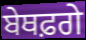
ਬੇਥਫ਼ਗੇ